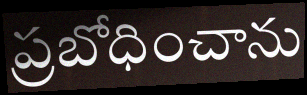
ప్రబోధించాను